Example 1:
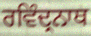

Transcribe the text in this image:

ਰਵਿੰਦ੍ਰਨਾਥ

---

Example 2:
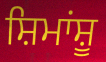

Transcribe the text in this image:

ਸ਼ਿਮਾਂਸ਼ੂ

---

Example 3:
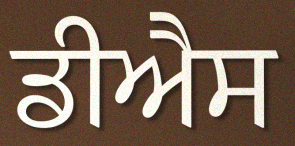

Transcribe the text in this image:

ਡੀਐਸ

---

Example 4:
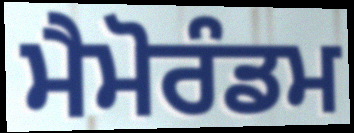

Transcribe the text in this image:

ਮੈਮੋਰੰਡਮ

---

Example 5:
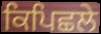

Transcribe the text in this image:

ਕਿਪਿਛਲੇ